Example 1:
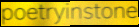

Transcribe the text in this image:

poetryinstone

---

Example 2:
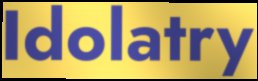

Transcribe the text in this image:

Idolatry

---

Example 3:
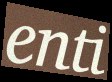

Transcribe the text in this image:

enti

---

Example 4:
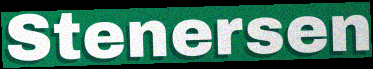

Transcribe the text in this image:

Stenersen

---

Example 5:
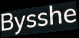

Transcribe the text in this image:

Bysshe